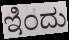
ಇಿಂದು